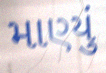
માણ્યું